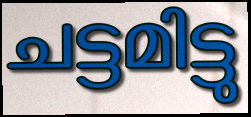
ചട്ടമിട്ടു